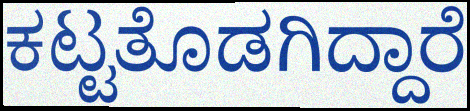
ಕಟ್ಟತೊಡಗಿದ್ದಾರೆ